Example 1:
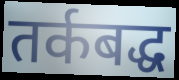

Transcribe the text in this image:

तर्कबद्ध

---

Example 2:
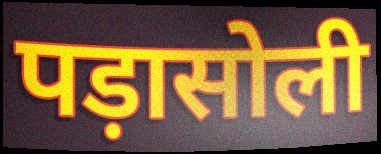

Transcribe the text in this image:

पड़ासोली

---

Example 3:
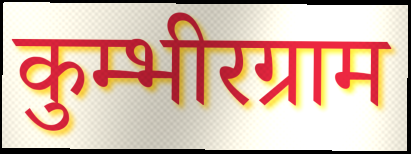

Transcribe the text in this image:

कुम्भीरग्राम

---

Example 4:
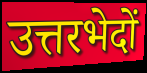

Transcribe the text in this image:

उत्तरभेदों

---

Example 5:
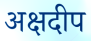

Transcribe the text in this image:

अक्षदीप